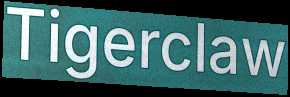
Tigerclaw